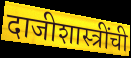
दाजीशास्त्रींची